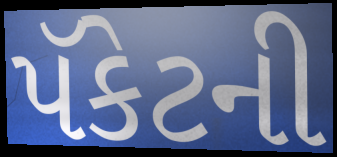
પૅકેટની